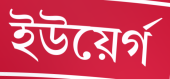
ইউয়ের্গ